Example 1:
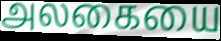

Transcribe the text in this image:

அலகையை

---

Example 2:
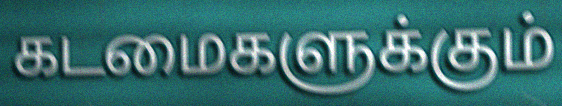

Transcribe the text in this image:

கடமைகளுக்கும்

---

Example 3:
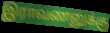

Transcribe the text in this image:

இராவணனுக்கு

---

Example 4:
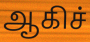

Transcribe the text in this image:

ஆகிச்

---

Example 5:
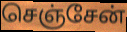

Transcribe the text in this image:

செஞ்சேன்